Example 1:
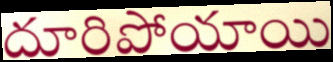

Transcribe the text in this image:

దూరిపోయాయి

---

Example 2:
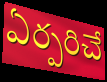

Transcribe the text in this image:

ఏర్పరిచే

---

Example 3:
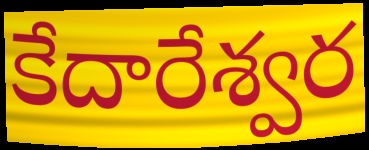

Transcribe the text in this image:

కేదారేశ్వర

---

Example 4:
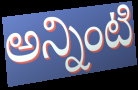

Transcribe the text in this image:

అన్నింటి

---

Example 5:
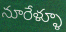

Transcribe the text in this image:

నూరేళ్ళూ